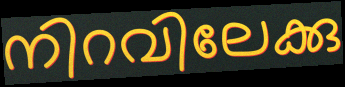
നിറവിലേക്കു